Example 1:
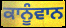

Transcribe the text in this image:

ਕਾਨੂੰਵਾਨ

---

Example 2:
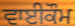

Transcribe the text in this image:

ਵਾਈਕੌਮ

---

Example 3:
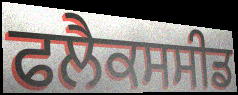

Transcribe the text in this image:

ਫਲੈਕਸਸੀਡ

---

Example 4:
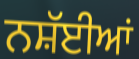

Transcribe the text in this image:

ਨਸ਼ੱਈਆਂ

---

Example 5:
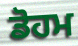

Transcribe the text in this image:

ਡੋਹਮ